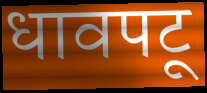
धावपटू